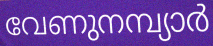
വേണുനമ്പ്യാർ